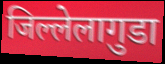
जिल्लेलागुडा